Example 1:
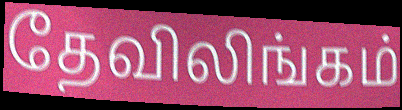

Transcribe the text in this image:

தேவிலிங்கம்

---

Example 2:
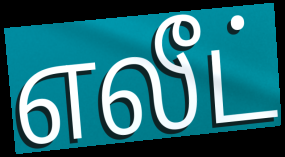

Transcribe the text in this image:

எலீட்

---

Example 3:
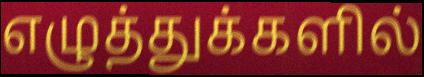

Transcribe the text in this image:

எழுத்துக்களில்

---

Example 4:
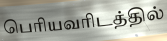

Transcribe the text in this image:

பெரியவரிடத்தில்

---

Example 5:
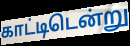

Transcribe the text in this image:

காட்டிடென்று